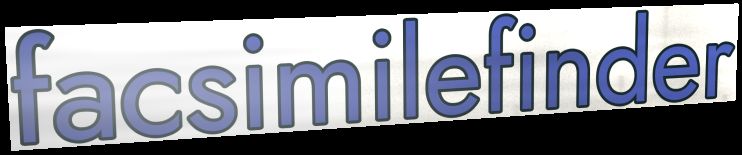
facsimilefinder